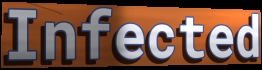
Infected